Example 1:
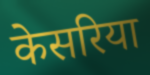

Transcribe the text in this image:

केसरिया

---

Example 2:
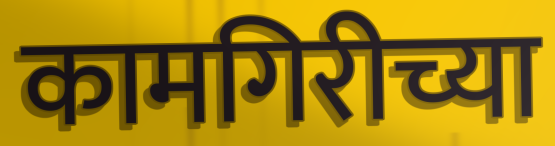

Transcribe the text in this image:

कामगिरीच्या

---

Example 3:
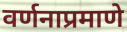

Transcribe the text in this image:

वर्णनाप्रमाणे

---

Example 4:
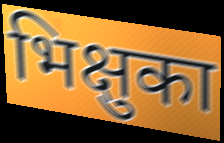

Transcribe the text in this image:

भिक्षुका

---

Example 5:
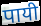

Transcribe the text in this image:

पायी